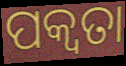
ପକ୍ୱତା